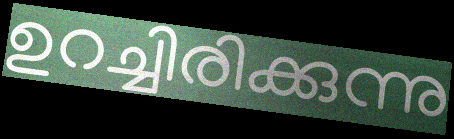
ഉറച്ചിരിക്കുന്നു